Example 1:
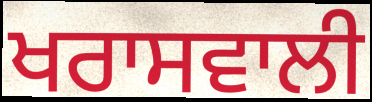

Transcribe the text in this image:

ਖਰਾਸਵਾਲੀ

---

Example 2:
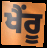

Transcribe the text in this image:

ਖੈਂਰੂ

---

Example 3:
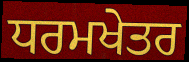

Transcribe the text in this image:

ਧਰਮਖੇਤਰ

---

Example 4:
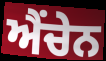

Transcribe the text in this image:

ਐਂਚੇਨ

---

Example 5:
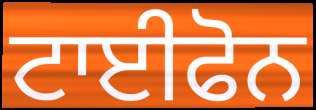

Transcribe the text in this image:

ਟਾਈਫੋਨ